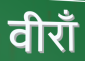
वीराँ